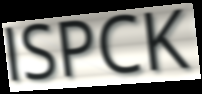
ISPCK